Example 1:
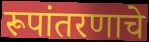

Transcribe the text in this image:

रूपांतरणाचे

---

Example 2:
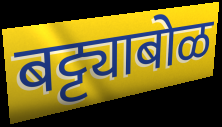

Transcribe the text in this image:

बट्ट्याबोळ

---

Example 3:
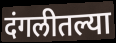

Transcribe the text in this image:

दंगलीतल्या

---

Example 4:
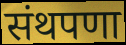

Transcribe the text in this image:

संथपणा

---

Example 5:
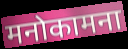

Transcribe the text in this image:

मनोकामना